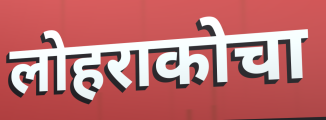
लोहराकोचा